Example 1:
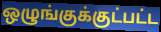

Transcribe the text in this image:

ஒழுங்குக்குட்பட்ட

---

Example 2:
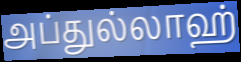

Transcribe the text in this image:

அப்துல்லாஹ்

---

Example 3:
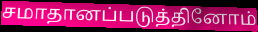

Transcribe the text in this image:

சமாதானப்படுத்தினோம்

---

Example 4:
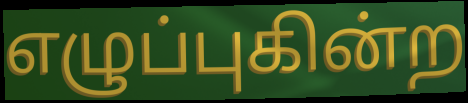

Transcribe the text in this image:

எழுப்புகின்ற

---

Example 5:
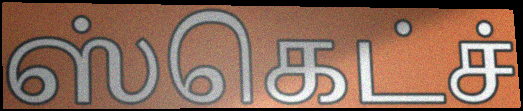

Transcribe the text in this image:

ஸ்கெட்ச்